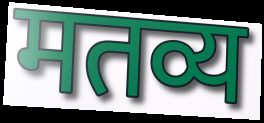
मतव्य